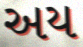
અય